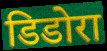
डिडोरा